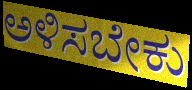
ಅಳಿಸಬೇಕು